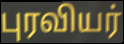
புரவியர்